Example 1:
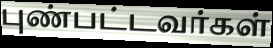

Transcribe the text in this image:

புண்பட்டவர்கள்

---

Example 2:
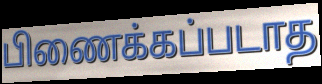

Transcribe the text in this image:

பிணைக்கப்படாத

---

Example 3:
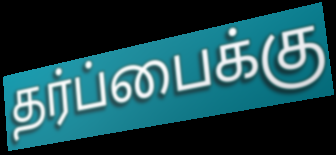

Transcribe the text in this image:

தர்ப்பைக்கு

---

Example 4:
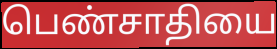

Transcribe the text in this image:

பெண்சாதியை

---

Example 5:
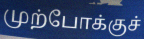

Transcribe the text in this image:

முற்போக்குச்